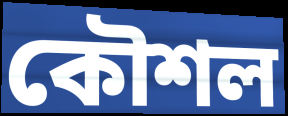
কৌশল